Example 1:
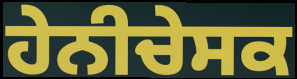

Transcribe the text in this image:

ਹੇਨੀਚੇਸਕ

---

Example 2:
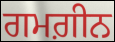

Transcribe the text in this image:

ਗਮਗ਼ੀਨ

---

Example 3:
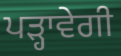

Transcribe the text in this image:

ਪੜ੍ਹਾਵੇਗੀ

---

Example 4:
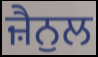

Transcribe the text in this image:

ਜ਼ੈਨੁਲ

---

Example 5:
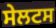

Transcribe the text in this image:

ਸੇਲਟਸ